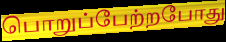
பொறுப்பேற்றபோது